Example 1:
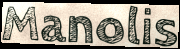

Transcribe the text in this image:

Manolis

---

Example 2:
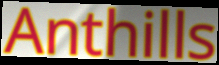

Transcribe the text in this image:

Anthills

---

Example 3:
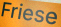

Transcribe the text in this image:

Friese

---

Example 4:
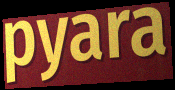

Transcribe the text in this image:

pyara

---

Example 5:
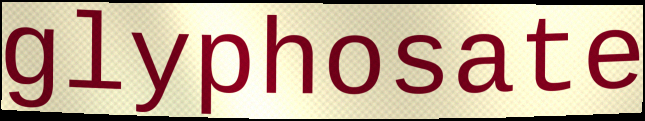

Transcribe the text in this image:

glyphosate